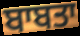
ਬਾਬਤਾ